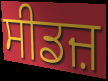
ਸੀਡਜ਼